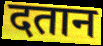
दतान